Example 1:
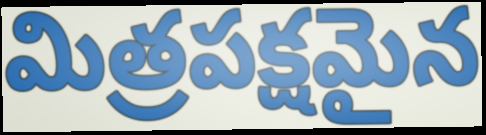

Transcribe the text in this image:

మిత్రపక్షమైన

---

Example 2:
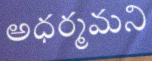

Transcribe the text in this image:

అధర్మమని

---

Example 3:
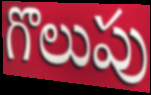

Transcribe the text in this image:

గొలుపు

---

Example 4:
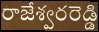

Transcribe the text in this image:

రాజేశ్వరరెడ్డి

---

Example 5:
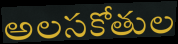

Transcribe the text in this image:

అలసకోతుల